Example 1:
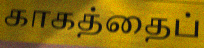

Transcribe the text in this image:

காகத்தைப்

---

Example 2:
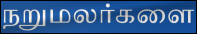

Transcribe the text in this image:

நறுமலர்களை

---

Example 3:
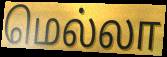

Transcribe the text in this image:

மெல்லா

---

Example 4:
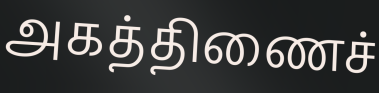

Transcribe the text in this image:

அகத்திணைச்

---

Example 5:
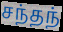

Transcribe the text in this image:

சந்தந்